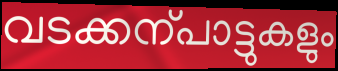
വടക്കന്പാട്ടുകളും